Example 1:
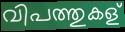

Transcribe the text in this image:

വിപത്തുകള്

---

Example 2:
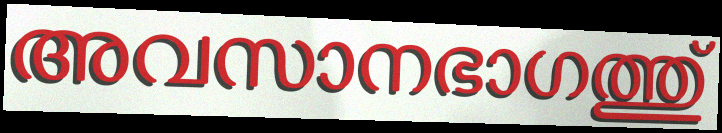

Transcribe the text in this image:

അവസാനഭാഗത്തു്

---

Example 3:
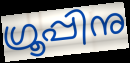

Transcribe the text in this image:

ഗ്രൂപ്പിനു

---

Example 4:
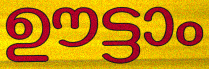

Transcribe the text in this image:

ഊട്ടാം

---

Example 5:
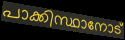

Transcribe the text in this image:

പാക്കിസ്ഥാനോട്